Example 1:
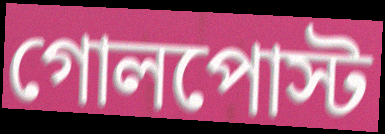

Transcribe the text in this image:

গোলপোস্ট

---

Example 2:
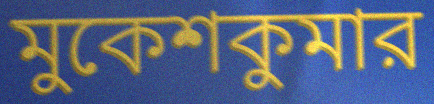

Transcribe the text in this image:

মুকেশকুমার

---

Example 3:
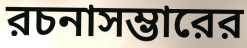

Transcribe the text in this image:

রচনাসম্ভারের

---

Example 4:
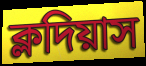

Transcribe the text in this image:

ক্লদিয়াস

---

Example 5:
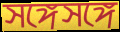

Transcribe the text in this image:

সঙ্গেসঙ্গে